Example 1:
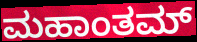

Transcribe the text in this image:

ಮಹಾಂತಮ್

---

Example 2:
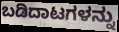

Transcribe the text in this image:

ಬಡಿದಾಟಗಳನ್ನು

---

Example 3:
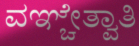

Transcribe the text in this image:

ವಞ್ಚೇತ್ವಾತಿ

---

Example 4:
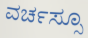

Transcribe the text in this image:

ವರ್ಚಸ್ಸೂ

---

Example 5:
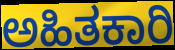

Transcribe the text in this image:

ಅಹಿತಕಾರಿ